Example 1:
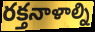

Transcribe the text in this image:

రక్తనాళాల్ని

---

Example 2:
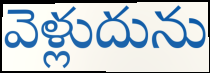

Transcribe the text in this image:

వెళ్లుదును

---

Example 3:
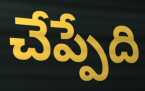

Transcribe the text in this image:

చేప్పేది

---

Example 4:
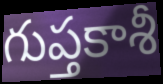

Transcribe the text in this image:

గుప్తకాశీ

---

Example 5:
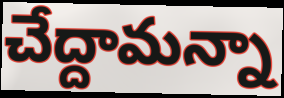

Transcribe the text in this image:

చేద్దామన్నా